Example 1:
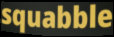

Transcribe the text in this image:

squabble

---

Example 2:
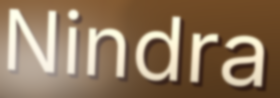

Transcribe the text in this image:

Nindra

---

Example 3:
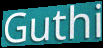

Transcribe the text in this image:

Guthi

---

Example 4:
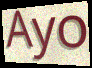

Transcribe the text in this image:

Ayo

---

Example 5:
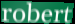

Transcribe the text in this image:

robert